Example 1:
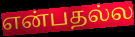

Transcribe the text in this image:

என்பதல்ல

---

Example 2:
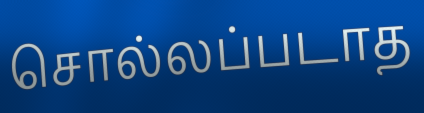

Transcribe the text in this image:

சொல்லப்படாத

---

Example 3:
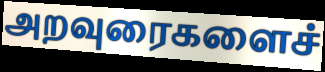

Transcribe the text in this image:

அறவுரைகளைச்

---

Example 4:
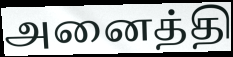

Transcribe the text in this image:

அனைத்தி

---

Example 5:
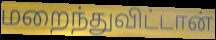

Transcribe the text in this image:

மறைந்துவிட்டான்